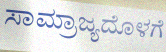
ಸಾಮ್ರಾಜ್ಯದೊಳಗೆ